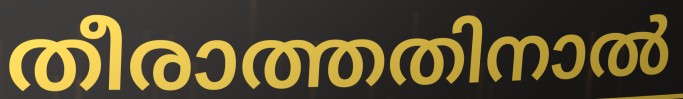
തീരാത്തതിനാൽ